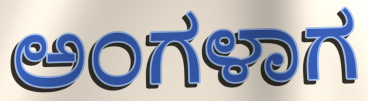
ಅಂಗಳಾಗ